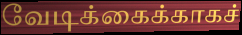
வேடிக்கைக்காகச்